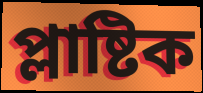
প্লাষ্টিক